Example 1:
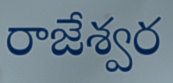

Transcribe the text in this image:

రాజేశ్వర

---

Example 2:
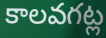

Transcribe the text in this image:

కాలవగట్ల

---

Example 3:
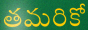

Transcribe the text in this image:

తమరికో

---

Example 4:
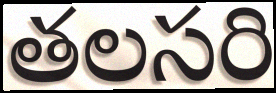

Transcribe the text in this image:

తలసరి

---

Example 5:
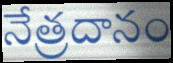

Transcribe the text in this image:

నేత్రదానం